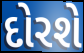
દોરશે